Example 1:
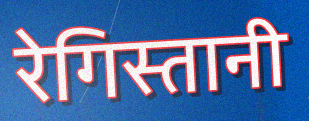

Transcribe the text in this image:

रेगिस्तानी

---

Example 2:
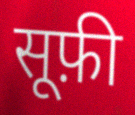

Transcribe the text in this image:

सूफ़ी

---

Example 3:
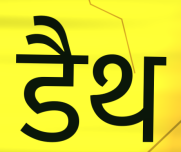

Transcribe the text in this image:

डैथ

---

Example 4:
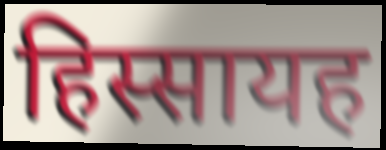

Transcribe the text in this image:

हिस्सायह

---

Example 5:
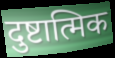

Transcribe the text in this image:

दुष्टात्मिक